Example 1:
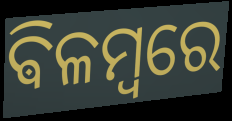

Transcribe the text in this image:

ଵିଳମ୍ବରେ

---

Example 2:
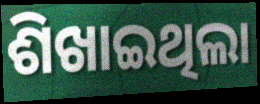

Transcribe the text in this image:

ଶିଖାଇଥିଲା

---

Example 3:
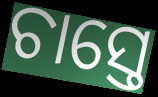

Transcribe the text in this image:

ଚାସ୍ତେ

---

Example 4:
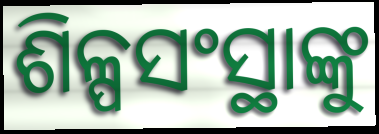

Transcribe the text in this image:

ଶିଳ୍ପସଂସ୍ଥାଙ୍କୁ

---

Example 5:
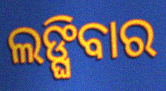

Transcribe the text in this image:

ଲଙ୍ଘିବାର